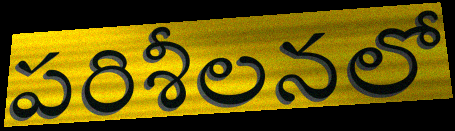
పరిశీలనలో